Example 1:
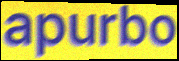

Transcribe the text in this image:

apurbo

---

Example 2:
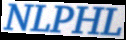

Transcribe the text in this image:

NLPHL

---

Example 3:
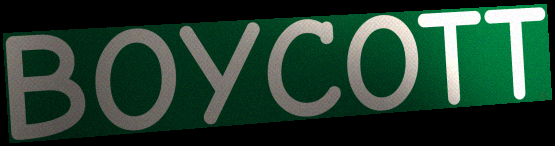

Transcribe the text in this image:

BOYCOTT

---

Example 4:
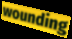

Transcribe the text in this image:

wounding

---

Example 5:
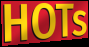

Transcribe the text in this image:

HOTs